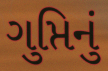
ગુપ્તિનું